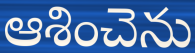
ఆశించెను